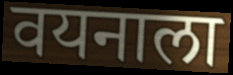
वयनाला